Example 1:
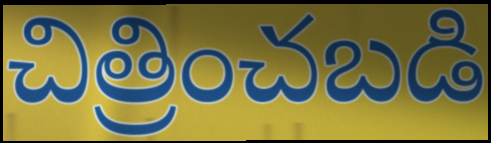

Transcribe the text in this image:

చిత్రించబడి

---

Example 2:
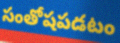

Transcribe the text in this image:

సంతోషపడటం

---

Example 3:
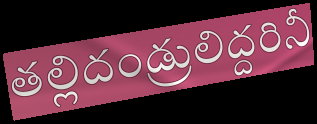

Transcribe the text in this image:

తల్లిదండ్రులిద్దరినీ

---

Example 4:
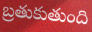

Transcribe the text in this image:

బ్రతుకుతుంది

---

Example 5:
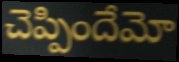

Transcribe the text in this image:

చెప్పిందేమో